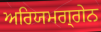
ਅਰਿਯਮਗ੍ਗੇਨ